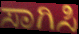
ಸಾಗಿಸಿ